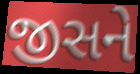
જીસને